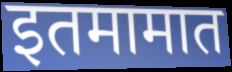
इतमामात